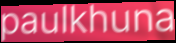
paulkhuna